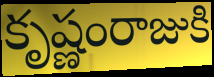
కృష్ణంరాజుకి